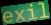
exil